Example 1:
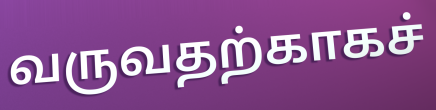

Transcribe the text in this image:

வருவதற்காகச்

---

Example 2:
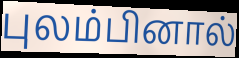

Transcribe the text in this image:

புலம்பினால்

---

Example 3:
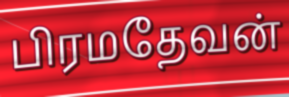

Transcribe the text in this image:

பிரமதேவன்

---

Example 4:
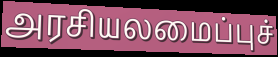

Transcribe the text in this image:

அரசியலமைப்புச்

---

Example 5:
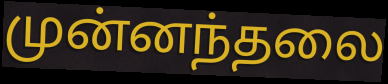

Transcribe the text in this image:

முன்னந்தலை